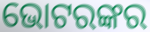
ଭୋଟରଙ୍କର